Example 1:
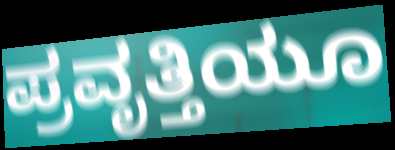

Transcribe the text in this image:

ಪ್ರವೃತ್ತಿಯೂ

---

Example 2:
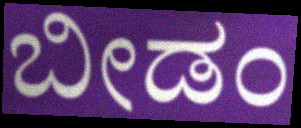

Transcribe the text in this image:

ಬೀಡಂ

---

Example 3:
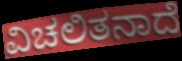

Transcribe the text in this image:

ವಿಚಲಿತನಾದೆ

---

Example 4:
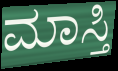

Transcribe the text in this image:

ಮಾಸ್ತಿ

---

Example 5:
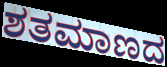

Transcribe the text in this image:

ಶತಮಾಣದ